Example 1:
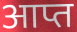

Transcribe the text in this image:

आप्त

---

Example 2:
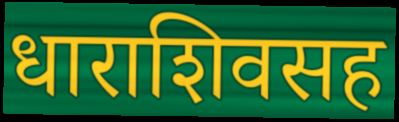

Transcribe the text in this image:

धाराशिवसह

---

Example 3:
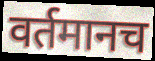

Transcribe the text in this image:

वर्तमानच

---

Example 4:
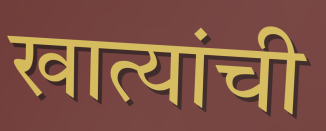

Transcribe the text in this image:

खात्यांची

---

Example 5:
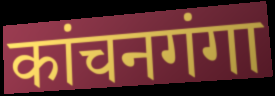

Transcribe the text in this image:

कांचनगंगा